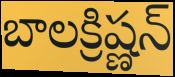
బాలక్రిష్ణన్